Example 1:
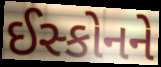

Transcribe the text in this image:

ઈસ્કોનને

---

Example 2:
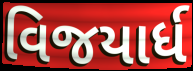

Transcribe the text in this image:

વિજયાર્ધ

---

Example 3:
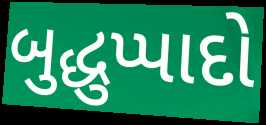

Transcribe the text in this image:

બુદ્ધુપ્પાદો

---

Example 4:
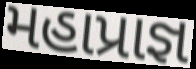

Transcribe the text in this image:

મહાપ્રાજ્ઞ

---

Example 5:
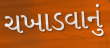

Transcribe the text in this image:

ચખાડવાનું